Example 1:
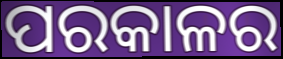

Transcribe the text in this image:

ପରକାଳର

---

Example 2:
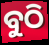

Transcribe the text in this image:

ବୁଠି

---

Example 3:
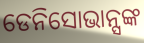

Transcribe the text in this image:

ଡେନିସୋଭାନ୍ସଙ୍କ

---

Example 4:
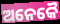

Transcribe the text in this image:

ଅନେକୈ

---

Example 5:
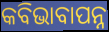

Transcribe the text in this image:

କବିଭାବାପନ୍ନ